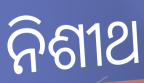
ନିଶୀଥ